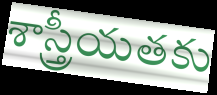
శాస్త్రీయతకు